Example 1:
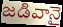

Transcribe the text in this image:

జడివానై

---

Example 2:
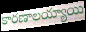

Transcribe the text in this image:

కారణాలయ్యాయి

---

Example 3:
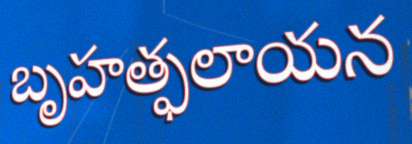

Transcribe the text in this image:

బృహత్ఫలాయన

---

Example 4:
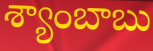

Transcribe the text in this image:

శ్యాంబాబు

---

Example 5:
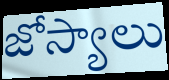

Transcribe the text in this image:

జోస్యాలు